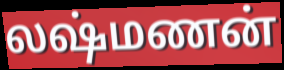
லஷ்மணன்